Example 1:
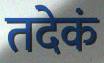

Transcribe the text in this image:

तदेकं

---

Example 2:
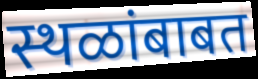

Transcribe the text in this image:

स्थळांबाबत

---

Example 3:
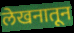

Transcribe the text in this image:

लेखनातून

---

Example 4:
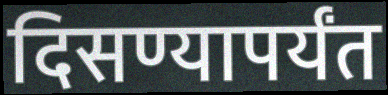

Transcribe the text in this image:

दिसण्यापर्यंत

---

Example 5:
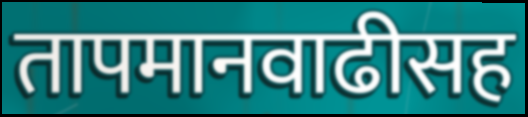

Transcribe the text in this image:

तापमानवाढीसह